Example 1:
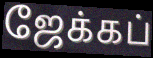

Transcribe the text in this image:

ஜேக்கப்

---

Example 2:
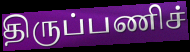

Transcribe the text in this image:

திருப்பணிச்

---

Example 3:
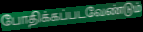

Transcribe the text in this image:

போதிக்கப்படவேண்டும்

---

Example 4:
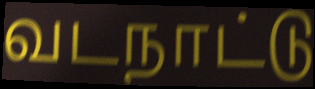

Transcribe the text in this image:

வடநாட்டு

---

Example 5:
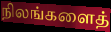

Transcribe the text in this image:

நிலங்களைத்